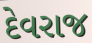
દેવરાજ